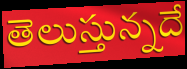
తెలుస్తున్నదే